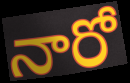
నారో